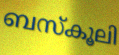
ബസ്കൂലി